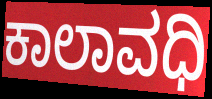
ಕಾಲಾವಧಿ